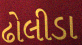
ઢોલીડા